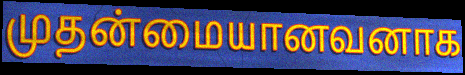
முதன்மையானவனாக